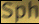
Sph